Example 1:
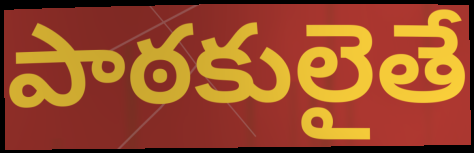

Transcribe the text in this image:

పాఠకులైతే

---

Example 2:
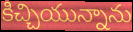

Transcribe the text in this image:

కిచ్చియున్నాను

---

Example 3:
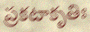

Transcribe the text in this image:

ప్రకటాకృతిః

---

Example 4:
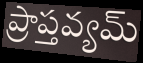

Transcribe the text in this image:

ప్రాప్తవ్యమ్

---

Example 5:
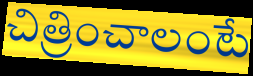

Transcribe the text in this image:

చిత్రించాలంటే